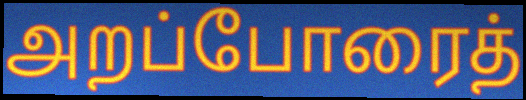
அறப்போரைத்